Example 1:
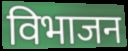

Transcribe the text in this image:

विभाजन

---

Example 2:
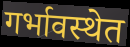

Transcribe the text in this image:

गर्भावस्थेत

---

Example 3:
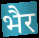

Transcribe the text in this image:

भैर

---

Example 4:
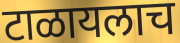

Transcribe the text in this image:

टाळायलाच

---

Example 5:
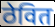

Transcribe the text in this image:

ठेवित